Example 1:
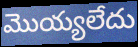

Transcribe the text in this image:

మొయ్యలేదు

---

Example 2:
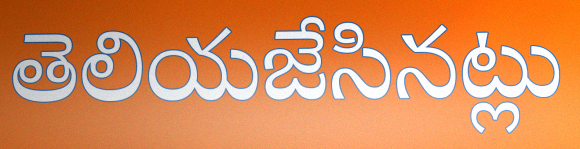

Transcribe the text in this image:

తెలియజేసినట్లు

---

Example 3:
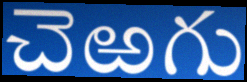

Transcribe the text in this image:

చెఱగు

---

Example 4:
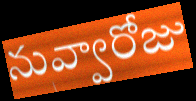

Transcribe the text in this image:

నువ్వారోజు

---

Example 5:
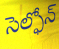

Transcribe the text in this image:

సెల్ఫోన్